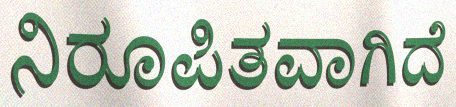
ನಿರೂಪಿತವಾಗಿದೆ